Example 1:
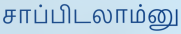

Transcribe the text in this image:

சாப்பிடலாம்னு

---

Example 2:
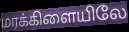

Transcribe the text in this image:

மரக்கிளையிலே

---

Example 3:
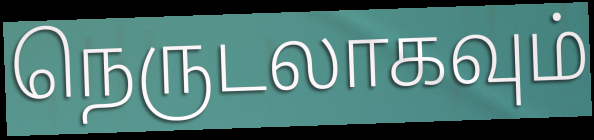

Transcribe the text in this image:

நெருடலாகவும்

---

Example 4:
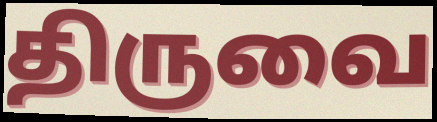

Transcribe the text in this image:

திருவை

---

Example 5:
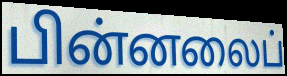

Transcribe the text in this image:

பின்னலைப்